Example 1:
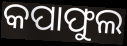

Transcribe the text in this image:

କପାଫୁଲ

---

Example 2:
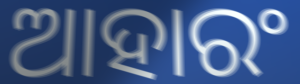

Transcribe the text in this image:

ଆହାରଂ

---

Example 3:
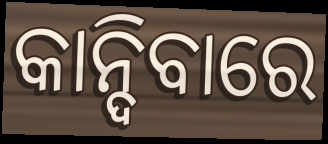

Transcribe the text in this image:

କାନ୍ଦିବାରେ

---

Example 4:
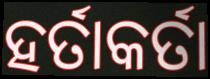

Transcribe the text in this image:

ହର୍ତାକର୍ତା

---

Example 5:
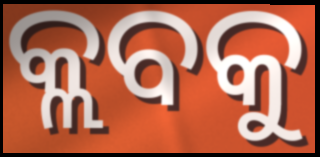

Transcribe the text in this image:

କ୍ଲବକୁ